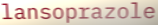
lansoprazole